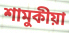
শামুকীয়া